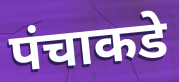
पंचाकडे